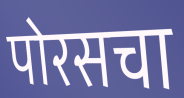
पोरसचा